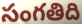
సంగతిది